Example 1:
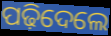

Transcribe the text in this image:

ପଢ଼ିଦେଲେ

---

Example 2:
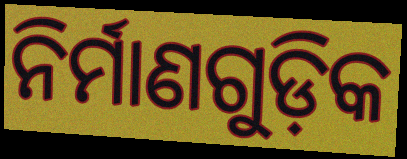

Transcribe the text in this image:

ନିର୍ମାଣଗୁଡ଼ିକ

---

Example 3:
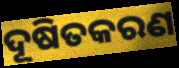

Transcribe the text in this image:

ଦୂଷିତକରଣ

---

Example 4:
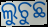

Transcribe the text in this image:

ଲୁଚୁଛ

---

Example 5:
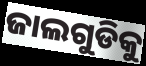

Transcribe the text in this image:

ଜାଲଗୁଡିକୁ